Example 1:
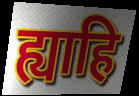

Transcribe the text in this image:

ह्याहि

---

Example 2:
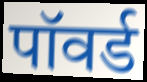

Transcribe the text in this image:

पॉवर्ड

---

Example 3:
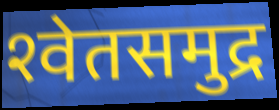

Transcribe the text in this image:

श्वेतसमुद्र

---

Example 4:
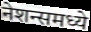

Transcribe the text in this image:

नेशन्समध्ये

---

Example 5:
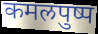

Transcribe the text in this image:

कमलपुष्प